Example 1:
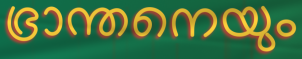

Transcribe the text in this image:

ഭ്രാന്തനെയും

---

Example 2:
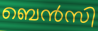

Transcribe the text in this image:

ബെൻസി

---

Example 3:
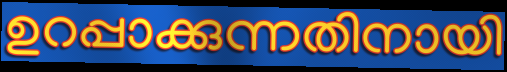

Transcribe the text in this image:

ഉറപ്പാക്കുന്നതിനായി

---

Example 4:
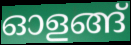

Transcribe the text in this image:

ഓളങ്ങ്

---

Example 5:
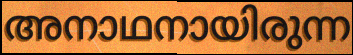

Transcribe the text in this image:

അനാഥനായിരുന്ന